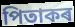
পিতাকৰ